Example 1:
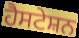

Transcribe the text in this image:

ਹੈਸਟੇਸ਼ਨ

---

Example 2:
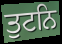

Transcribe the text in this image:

ਤੁਟਨਿ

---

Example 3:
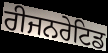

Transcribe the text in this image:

ਰੀਜਨਰੇਟਿਡ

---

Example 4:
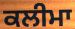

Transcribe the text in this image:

ਕਲੀਮਾ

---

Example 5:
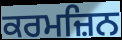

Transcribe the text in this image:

ਕਰਮਜ਼ਿਨ